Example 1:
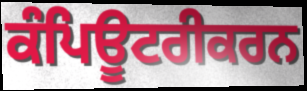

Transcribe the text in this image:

ਕੰਪਿਊਟਰੀਕਰਨ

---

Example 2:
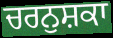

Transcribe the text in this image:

ਚਰਨੁਸ਼ਕਾ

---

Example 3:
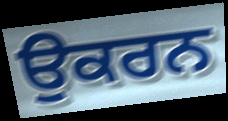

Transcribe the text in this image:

ਉਕਰਨ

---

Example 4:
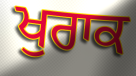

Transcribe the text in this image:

ਖੁਰਾਕ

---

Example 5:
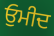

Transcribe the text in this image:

ਓੁਮੀਦ